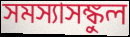
সমস্যাসঙ্কুল